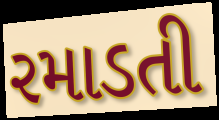
રમાડતી